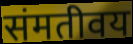
संमतीवय